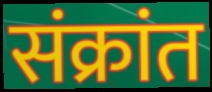
संक्रांत